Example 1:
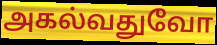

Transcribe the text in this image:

அகல்வதுவோ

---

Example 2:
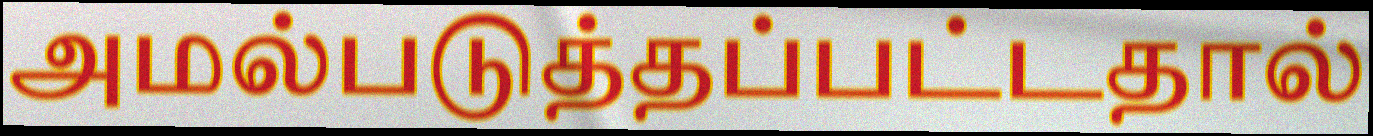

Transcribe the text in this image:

அமல்படுத்தப்பட்டதால்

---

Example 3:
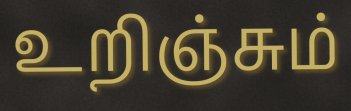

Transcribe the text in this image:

உறிஞ்சும்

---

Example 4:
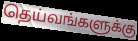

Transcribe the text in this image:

தெய்வங்களுக்கு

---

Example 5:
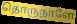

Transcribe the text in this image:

தொருநாளே